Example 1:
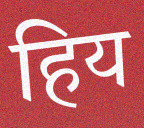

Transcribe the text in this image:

हिय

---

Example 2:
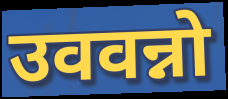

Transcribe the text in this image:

उववन्नो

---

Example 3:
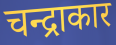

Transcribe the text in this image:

चन्द्राकार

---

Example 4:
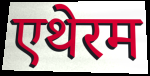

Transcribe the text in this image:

एथेरम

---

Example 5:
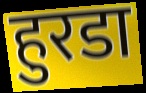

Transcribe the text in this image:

हुरडा